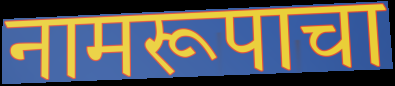
नामरूपाचा